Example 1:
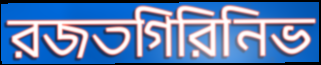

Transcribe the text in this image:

রজতগিরিনিভ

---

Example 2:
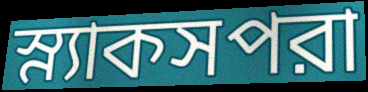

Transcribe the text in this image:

স্ন্যাকসপরা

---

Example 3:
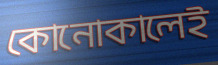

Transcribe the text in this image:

কোনোকালেই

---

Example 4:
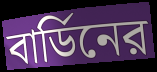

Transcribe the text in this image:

বার্ডিনের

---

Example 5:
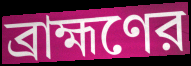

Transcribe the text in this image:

ব্রাহ্মণের